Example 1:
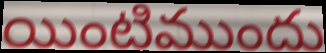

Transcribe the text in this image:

యింటిముందు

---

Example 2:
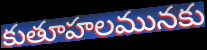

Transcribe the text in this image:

కుతూహలమునకు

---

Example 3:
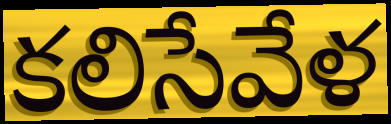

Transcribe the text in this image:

కలిసేవేళ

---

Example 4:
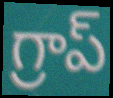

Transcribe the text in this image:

గ్రాప్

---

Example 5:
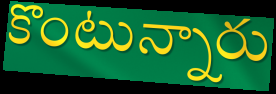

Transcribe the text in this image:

కొంటున్నారు